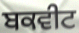
ਬਕਵੀਟ